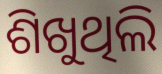
ଶିଖୁଥିଲି